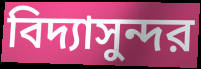
বিদ্যাসুন্দর